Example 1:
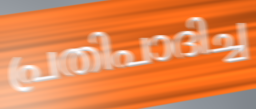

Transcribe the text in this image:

പ്രതിപാദിച്ച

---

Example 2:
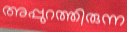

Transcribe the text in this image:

അപ്പുറത്തിരുന്ന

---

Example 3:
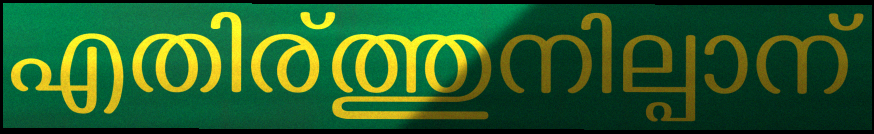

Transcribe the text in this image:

എതിര്ത്തുനില്പാന്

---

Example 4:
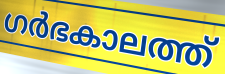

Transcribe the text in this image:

ഗർഭകാലത്ത്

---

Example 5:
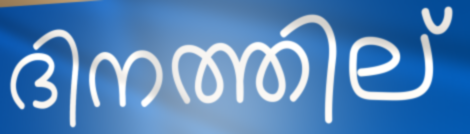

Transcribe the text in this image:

ദിനത്തില്